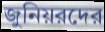
জুনিয়রদের